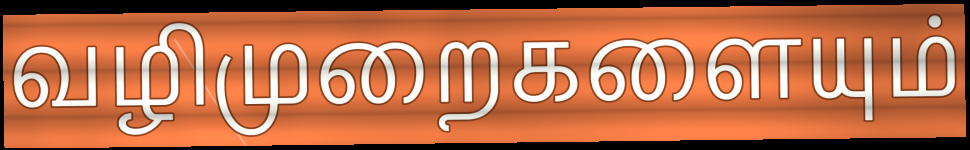
வழிமுறைகளையும்